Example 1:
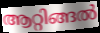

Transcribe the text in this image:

ആറ്റിങ്ങൽ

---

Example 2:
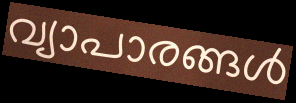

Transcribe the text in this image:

വ്യാപാരങ്ങൾ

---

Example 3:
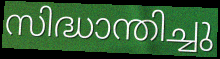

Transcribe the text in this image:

സിദ്ധാന്തിച്ചു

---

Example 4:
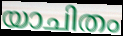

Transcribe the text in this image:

യാചിതം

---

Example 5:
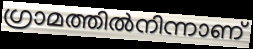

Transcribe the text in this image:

ഗ്രാമത്തിൽനിന്നാണ്